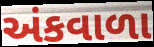
અંકવાળા